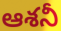
ఆశనీ